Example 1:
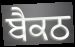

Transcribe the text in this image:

ਬੈਕਠ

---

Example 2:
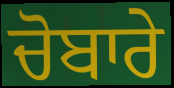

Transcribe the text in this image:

ਚੋਬਾਰੇ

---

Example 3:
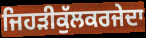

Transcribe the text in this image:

ਜਿਹੜੀਕੁੱਲਕਰਜੇਦਾ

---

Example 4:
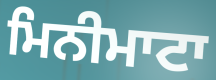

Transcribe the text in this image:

ਮਿਨੀਮਾਟਾ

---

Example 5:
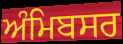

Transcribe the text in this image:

ਅੰਮਿਬਸਰ